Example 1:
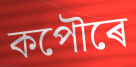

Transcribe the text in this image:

কপৌৰে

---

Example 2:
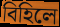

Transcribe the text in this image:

বিহিলে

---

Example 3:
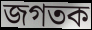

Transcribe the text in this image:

জগতক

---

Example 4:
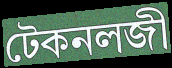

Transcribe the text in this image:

টেকনলজী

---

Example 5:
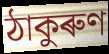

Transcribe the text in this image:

ঠাকুৰুণ